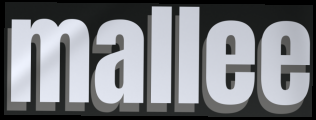
mallee